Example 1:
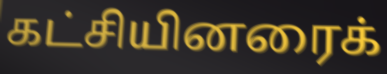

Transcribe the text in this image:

கட்சியினரைக்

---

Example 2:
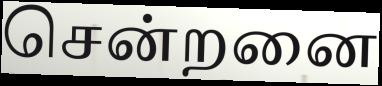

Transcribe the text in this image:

சென்றனை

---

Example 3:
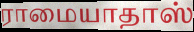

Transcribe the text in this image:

ராமையாதாஸ்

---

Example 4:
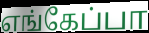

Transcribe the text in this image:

எங்கேப்பா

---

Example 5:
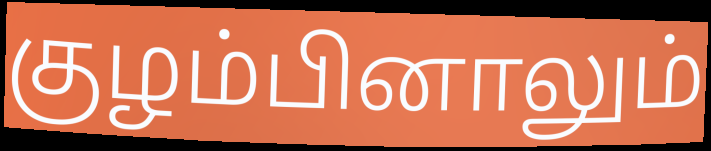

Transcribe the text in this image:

குழம்பினாலும்